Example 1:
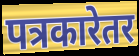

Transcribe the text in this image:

पत्रकारेतर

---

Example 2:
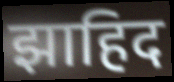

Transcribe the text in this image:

झाहिद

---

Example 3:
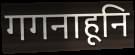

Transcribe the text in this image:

गगनाहूनि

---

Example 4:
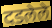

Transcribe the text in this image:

दडलेले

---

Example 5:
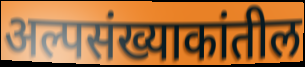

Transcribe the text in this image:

अल्पसंख्याकांतील